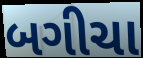
બગીચા